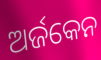
ଅର୍ଜକେନ